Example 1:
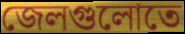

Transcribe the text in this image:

জেলগুলোতে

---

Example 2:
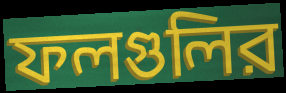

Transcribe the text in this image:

ফলগুলির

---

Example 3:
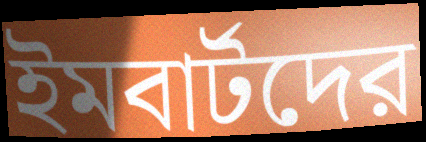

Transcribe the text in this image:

ইমবার্টদের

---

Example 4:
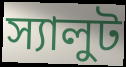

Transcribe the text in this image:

স্যালুট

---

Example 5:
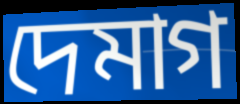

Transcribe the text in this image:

দেমাগ